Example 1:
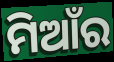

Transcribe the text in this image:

ମିଆଁର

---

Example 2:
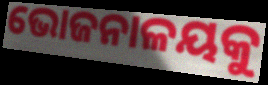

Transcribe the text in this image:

ଭୋଜନାଳୟକୁ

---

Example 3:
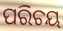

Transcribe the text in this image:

ପରିଚୟ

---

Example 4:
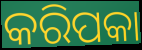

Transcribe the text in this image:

କରିପକା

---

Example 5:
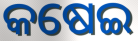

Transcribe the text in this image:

କଷେଇ